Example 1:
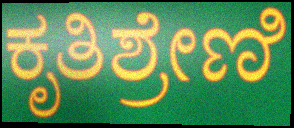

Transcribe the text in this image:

ಕೃತಿಶ್ರೇಣಿ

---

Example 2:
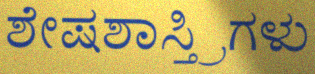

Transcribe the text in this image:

ಶೇಷಶಾಸ್ತ್ರಿಗಳು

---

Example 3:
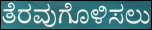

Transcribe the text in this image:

ತೆರವುಗೊಳಿಸಲು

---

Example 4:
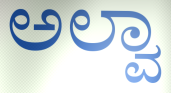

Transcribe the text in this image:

ಅಲ್ವಾ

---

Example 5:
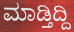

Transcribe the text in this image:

ಮಾಡ್ತಿದ್ದಿ